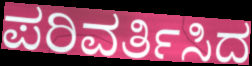
ಪರಿವರ್ತಿಸಿದ